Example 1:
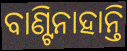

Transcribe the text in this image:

ବାଣ୍ଟିନାହାନ୍ତି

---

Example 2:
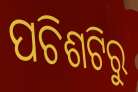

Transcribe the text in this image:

ପଚିଶଟିରୁ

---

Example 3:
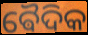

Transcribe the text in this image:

ଵୈଦିକ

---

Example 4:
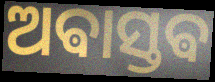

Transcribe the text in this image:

ଅଵାସ୍ତଵ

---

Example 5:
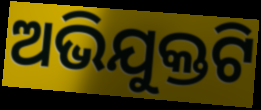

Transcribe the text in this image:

ଅଭିଯୁକ୍ତଟି